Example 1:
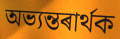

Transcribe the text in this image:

অভ্যন্তৰাৰ্থক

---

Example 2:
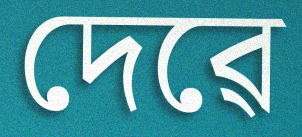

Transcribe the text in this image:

দেৱে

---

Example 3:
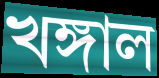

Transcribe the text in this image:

খঙ্গাল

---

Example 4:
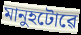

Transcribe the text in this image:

মানুহটোৱে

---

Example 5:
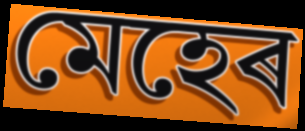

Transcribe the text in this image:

মেহেৰ